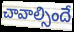
చావాల్సిందే